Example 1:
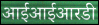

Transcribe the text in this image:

आईआईआरडी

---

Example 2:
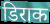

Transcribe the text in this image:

डिराक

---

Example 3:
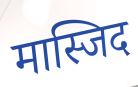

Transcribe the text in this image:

मास्जिद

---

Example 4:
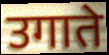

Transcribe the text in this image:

उगाते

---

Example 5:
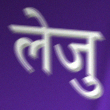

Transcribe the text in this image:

लेजु